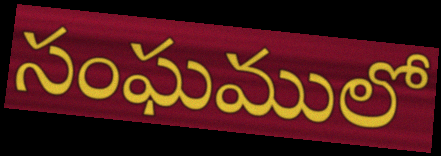
సంఘములో